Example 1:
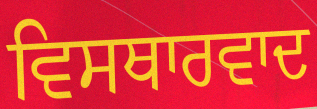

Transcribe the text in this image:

ਵਿਸਥਾਰਵਾਦ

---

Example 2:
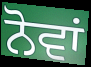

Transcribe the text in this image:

ਨੋਵਾਂ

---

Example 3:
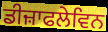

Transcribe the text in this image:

ਡੀਜ਼ਾਫਲੇਵਿਨ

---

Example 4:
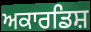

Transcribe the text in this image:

ਅਕਾਰਡਿਸ਼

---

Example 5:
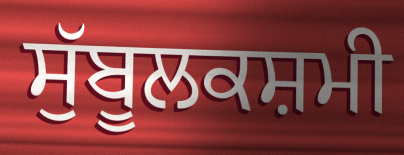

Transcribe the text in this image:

ਸੁੱਬੂਲਕਸ਼ਮੀ